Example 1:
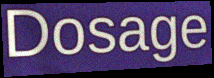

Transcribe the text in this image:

Dosage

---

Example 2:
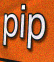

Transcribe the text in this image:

pip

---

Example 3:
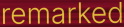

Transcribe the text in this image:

remarked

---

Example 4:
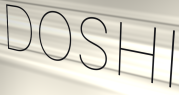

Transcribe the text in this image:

DOSHI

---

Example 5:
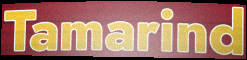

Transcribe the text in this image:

Tamarind